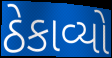
ઠેકાવ્યો